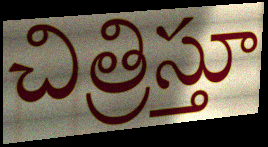
చిత్రిస్తూ